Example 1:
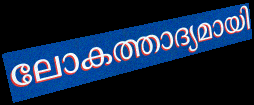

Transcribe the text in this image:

ലോകത്താദ്യമായി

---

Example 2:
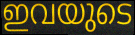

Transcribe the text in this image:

ഇവയുടെ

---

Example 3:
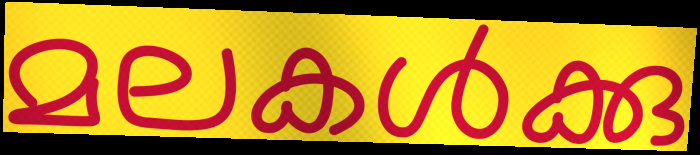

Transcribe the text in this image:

മലകൾക്കു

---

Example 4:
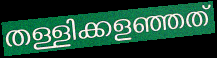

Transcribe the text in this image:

തള്ളിക്കളഞ്ഞത്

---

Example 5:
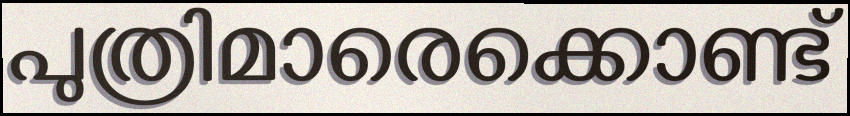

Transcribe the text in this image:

പുത്രിമാരെക്കൊണ്ട്